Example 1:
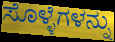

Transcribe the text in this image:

ಸೊಳ್ಳೆಗಳನ್ನು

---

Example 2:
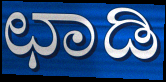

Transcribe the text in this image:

ಛಾಡಿ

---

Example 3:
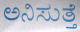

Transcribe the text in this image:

ಅನಿಸುತ್ತೆ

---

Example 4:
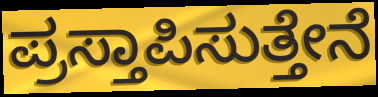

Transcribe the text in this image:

ಪ್ರಸ್ತಾಪಿಸುತ್ತೇನೆ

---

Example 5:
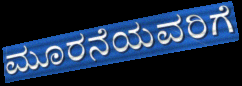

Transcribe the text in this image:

ಮೂರನೆಯವರಿಗೆ